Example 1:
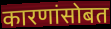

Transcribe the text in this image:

कारणांसोबत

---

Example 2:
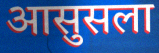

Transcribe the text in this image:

आसुसला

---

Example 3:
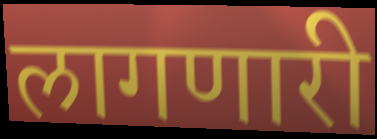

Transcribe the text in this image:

लागणारी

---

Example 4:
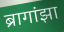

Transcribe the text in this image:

ब्रागांझा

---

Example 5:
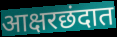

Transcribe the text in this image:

आक्षरछंदात